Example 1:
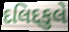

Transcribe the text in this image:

દલિદ્દકુલે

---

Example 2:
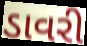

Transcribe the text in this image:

ડાવરી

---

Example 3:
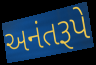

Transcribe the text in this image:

અનંતરૂપે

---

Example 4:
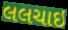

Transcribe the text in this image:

લલચાઇ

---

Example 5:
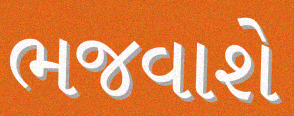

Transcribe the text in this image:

ભજવાશે